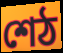
শেঠ